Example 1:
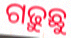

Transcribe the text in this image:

ଗଢ଼ୁଛୁ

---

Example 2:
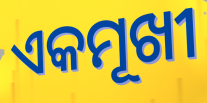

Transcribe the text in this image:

ଏକମୂଖୀ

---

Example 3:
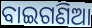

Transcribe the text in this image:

ବାଇଗଣିଆ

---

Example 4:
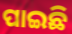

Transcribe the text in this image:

ପାଇଛି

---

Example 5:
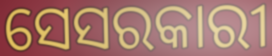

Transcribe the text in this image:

ସେସରକାରୀ